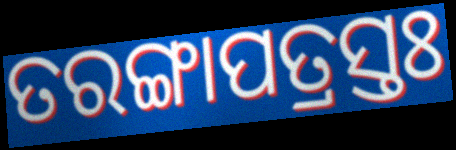
ତରଙ୍ଗାପତ୍ରସ୍ତଃ